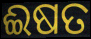
ଈଷତ